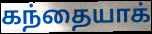
கந்தையாக்